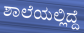
ಶಾಲೆಯಲ್ಲಿದ್ದೆ